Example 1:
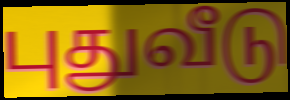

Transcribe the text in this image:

புதுவீடு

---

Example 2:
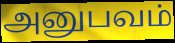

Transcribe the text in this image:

அனுபவம்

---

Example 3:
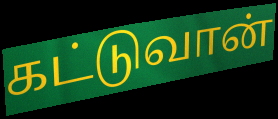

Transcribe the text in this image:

கட்டுவான்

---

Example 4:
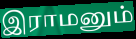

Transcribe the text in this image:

இராமனும்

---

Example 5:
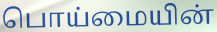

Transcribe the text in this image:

பொய்மையின்